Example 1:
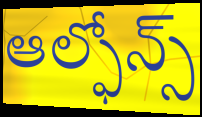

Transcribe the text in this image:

ఆల్ఫోన్స్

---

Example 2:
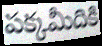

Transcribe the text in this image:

పక్కమీదికి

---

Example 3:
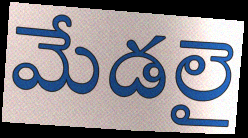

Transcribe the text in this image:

మేడలై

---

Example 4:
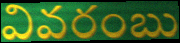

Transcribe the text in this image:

వివరంబు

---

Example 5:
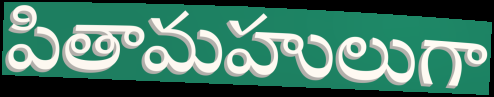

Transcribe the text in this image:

పితామహులుగా